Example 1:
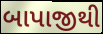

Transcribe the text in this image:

બાપાજીથી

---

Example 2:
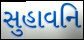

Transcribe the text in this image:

સુહાવનિ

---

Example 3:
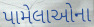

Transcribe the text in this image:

પામેલાઓના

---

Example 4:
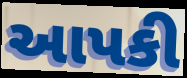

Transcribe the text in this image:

આપકી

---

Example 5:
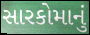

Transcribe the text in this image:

સારકોમાનું